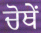
ਚੋਥੇਂ